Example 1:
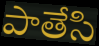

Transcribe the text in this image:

పాతేసి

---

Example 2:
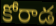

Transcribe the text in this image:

కోరాడ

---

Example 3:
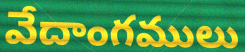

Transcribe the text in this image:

వేదాంగములు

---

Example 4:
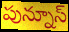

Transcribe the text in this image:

పున్నూస్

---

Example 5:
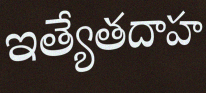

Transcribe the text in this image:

ఇత్యేతదాహ